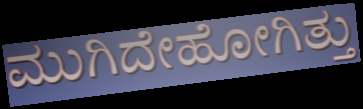
ಮುಗಿದೇಹೋಗಿತ್ತು